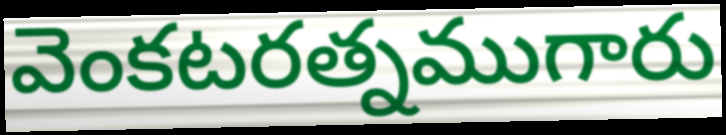
వెంకటరత్నముగారు